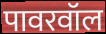
पावरवॉल